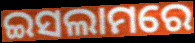
ଇସଲାମରେ